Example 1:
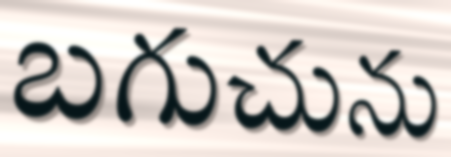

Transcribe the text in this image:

బగుచును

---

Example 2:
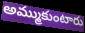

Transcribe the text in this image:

అమ్ముకుంటారు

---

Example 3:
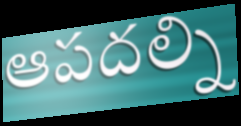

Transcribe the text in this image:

ఆపదల్ని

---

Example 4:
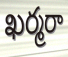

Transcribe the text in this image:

ఖర్మరా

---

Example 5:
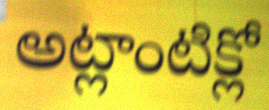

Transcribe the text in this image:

అట్లాంటిక్లో